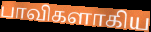
பாவிகளாகிய